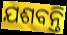
ଯଶବନ୍ତି